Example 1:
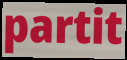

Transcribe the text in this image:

partit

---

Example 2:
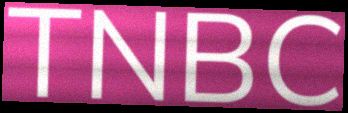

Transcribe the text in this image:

TNBC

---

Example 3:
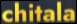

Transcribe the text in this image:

chitala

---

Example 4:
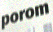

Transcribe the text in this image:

porom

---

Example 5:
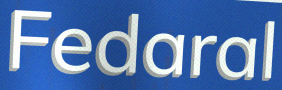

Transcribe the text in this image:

Fedaral